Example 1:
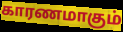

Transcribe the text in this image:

காரணமாகும்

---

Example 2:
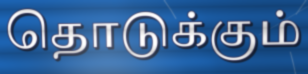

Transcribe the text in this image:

தொடுக்கும்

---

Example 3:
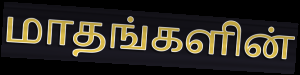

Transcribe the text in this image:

மாதங்களின்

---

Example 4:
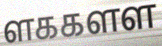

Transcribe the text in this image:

ளககளள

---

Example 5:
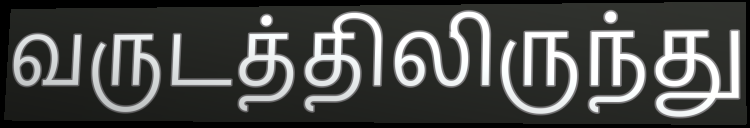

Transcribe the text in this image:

வருடத்திலிருந்து